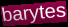
barytes